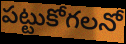
పట్టుకోగలనో